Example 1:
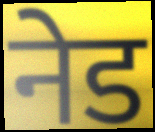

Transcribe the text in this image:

नेड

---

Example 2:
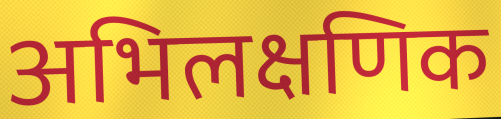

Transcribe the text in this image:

अभिलक्षणिक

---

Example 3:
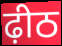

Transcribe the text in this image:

ढ़ीठ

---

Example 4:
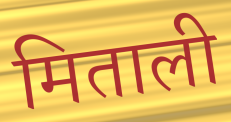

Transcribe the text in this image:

मिताली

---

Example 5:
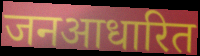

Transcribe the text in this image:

जनआधारित